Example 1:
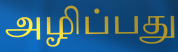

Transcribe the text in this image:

அழிப்பது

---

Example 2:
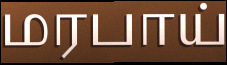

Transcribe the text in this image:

மரபாய்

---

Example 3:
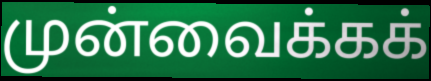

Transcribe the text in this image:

முன்வைக்கக்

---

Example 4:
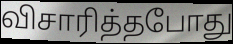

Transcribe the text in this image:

விசாரித்தபோது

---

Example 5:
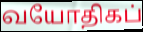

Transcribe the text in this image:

வயோதிகப்